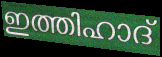
ഇത്തിഹാദ്